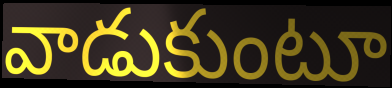
వాడుకుంటూ